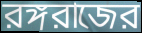
রঙ্গরাজের